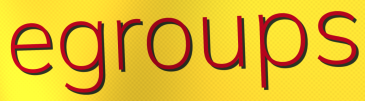
egroups